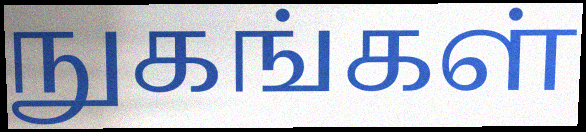
நுகங்கள்